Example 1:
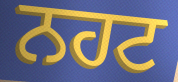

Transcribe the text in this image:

ਨਹਟ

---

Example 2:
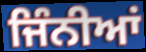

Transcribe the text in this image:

ਜਿੰਨੀਆਂ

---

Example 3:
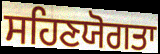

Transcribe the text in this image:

ਸਹਿਣਯੋਗਤਾ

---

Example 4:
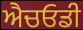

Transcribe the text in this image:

ਐਚਓਡੀ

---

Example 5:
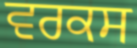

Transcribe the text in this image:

ਵਰਕਸ